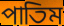
পাতিম